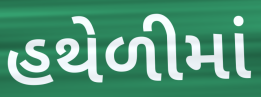
હથેળીમાં